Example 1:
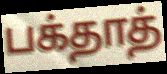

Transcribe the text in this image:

பக்தாத்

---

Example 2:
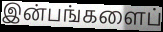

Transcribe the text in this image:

இன்பங்களைப்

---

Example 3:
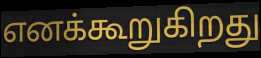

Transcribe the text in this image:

எனக்கூறுகிறது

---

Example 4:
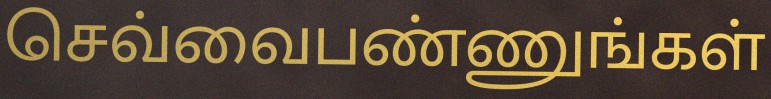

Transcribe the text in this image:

செவ்வைபண்ணுங்கள்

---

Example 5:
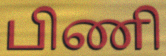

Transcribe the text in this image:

பிணி